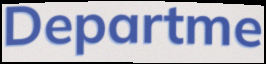
Departme